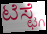
ಟೆಸ್ಟ್ಗೆ